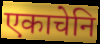
एकाचेनि